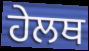
ਹੇਲਥ